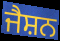
ਜੈਸ਼ਨ